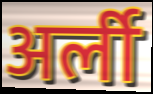
अर्ली